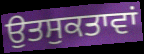
ਉਤਸੁਕਤਾਵਾਂ